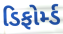
ડિફોર્મ્ડ